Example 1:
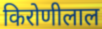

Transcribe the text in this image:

किरोणीलाल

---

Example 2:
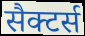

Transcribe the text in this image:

सैक्टर्स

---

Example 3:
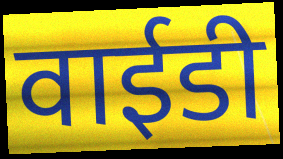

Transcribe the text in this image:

वाईडी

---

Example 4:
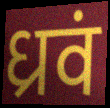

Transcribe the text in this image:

ध्रवं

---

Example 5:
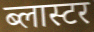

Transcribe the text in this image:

ब्लास्टर